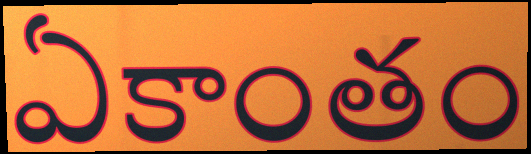
ఏకాంతం